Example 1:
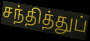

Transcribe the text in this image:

சந்தித்துப்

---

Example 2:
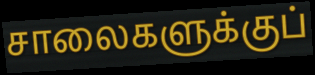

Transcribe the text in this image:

சாலைகளுக்குப்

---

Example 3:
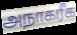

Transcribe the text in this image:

அநாகரீக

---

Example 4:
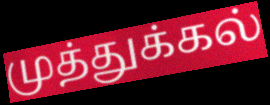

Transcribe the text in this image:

முத்துக்கல்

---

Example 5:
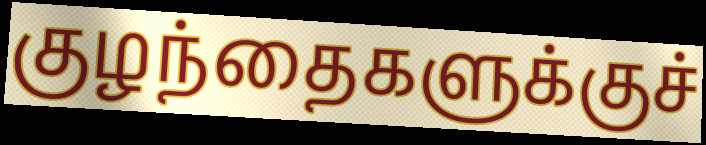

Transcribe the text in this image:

குழந்தைகளுக்குச்